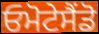
ਓਮੋਟੇਸੈਂਡੋ